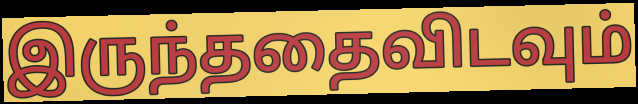
இருந்ததைவிடவும்